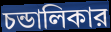
চন্ডালিকার